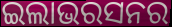
ଇଲାଭରସନର